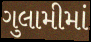
ગુલામીમાં